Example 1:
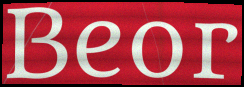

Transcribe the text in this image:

Beor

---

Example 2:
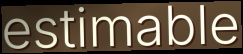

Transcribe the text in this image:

estimable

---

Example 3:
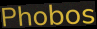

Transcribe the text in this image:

Phobos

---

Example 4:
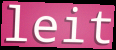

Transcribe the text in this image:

leit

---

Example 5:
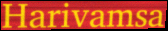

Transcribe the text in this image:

Harivamsa